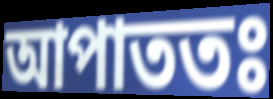
আপাততঃ